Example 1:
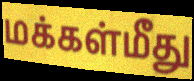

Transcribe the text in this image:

மக்கள்மீது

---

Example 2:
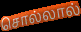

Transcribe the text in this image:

சொல்லால்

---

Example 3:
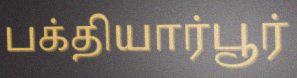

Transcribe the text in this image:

பக்தியார்பூர்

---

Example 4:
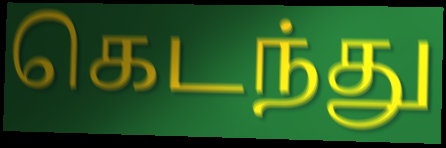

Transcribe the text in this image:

கெடந்து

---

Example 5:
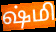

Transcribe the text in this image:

ஷ்மி